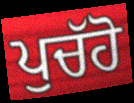
ਪੁਚੱਹੋ